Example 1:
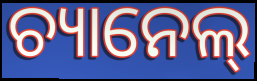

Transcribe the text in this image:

ଚ୍ୟାନେଲ୍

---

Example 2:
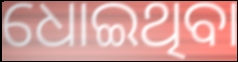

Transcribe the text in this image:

ଧୋଇଥିବା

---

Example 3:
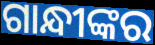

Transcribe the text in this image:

ଗାନ୍ଧୀଙ୍କର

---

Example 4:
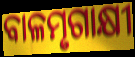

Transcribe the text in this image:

ବାଳମୃଗାକ୍ଷୀ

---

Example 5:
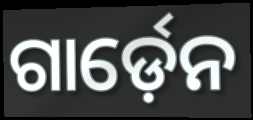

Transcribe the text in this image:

ଗାର୍ଡ଼େନ